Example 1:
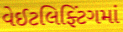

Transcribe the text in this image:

વેઈટલિફ્ટિંગમાં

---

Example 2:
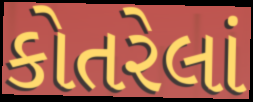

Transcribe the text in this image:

કોતરેલાં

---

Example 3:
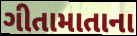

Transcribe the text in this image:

ગીતામાતાના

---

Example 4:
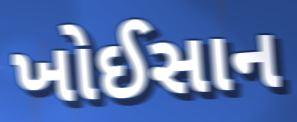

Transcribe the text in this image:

ખોઈસાન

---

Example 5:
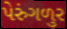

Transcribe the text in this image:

પેરુંગળુર